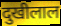
दुखीलाल